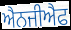
ਐਨਜੀਐਫ